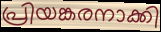
പ്രിയങ്കരനാക്കി